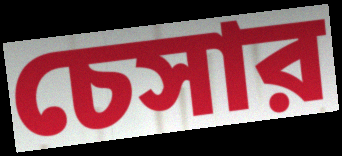
চেসার